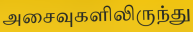
அசைவுகளிலிருந்து